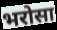
भरोसा